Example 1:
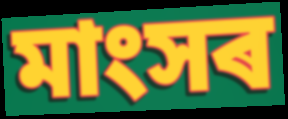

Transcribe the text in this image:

মাংসৰ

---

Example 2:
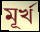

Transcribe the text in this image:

মূৰ্খ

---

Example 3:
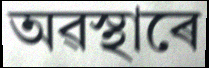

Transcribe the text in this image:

অৱস্থাৰে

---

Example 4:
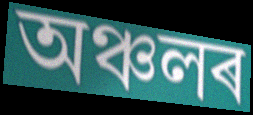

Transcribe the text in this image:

অঞ্চলৰ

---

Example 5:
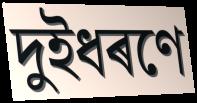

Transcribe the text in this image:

দুইধৰণে